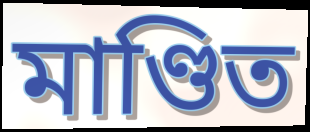
মাণ্ডিত